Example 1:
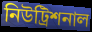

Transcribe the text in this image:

নিউট্রিশনাল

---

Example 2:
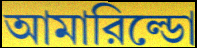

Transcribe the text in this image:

আমারিল্ডো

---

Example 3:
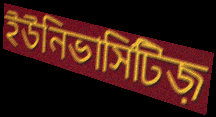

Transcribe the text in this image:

ইউনিভার্সিটিজ়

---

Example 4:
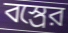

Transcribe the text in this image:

বস্ত্রের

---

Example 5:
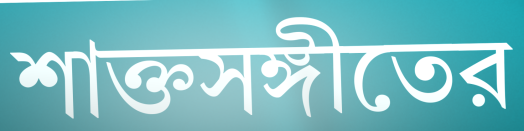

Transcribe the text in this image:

শাক্তসঙ্গীতের